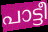
പാട്ടീ